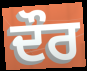
ਦੌਰ